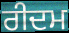
ਰੀਦਮ